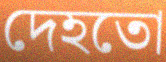
দেহতো